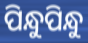
ପିନ୍ଧୁପିନ୍ଧୁ